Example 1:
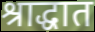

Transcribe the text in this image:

श्राद्धात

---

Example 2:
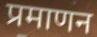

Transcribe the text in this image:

प्रमाणन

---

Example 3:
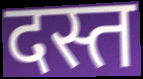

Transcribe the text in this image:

दस्त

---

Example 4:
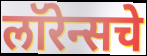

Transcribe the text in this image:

लॉरेन्सचे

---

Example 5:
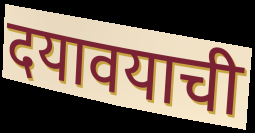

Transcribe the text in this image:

दयावयाची